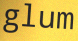
glum